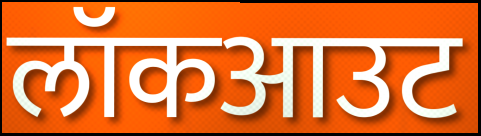
लॉकआउट